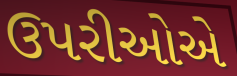
ઉપરીઓએ